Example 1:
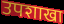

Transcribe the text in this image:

उपशाखा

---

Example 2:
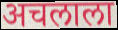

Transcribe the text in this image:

अचलाला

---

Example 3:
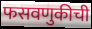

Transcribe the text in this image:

फसवणुकीची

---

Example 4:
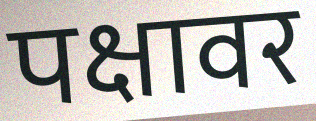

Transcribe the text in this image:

पक्षावर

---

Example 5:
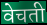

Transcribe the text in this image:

वेचती